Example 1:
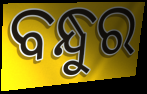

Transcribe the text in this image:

ବନ୍ଧୁର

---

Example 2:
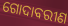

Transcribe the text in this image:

ଗୋଦାବରୀଣ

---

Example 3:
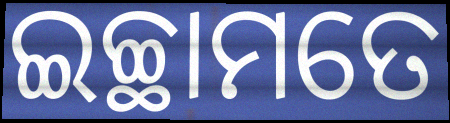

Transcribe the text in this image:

ଇଚ୍ଛାମତେ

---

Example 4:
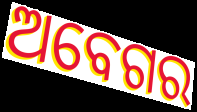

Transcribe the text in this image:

ଅବେଗର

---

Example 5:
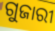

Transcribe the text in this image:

ଗୁଜାରୀ